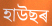
হাউছৰ